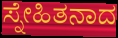
ಸ್ನೇಹಿತನಾದ